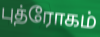
புத்ரோகம்